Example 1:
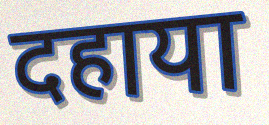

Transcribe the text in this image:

दहाया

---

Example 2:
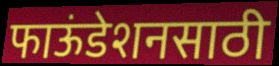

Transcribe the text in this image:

फाऊंडेशनसाठी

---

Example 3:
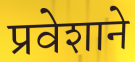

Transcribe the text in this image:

प्रवेशाने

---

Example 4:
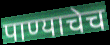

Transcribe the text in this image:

पाण्याचेच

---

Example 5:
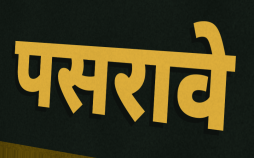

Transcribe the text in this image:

पसरावे